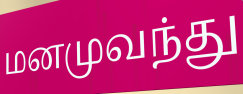
மனமுவந்து